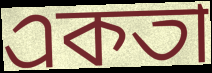
একতা